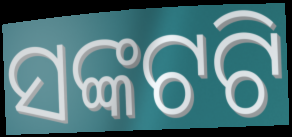
ସଙ୍କଟଟି